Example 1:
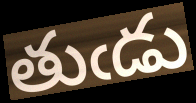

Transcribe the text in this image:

తుఁడు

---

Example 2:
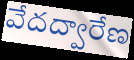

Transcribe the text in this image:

వేదద్వారేణ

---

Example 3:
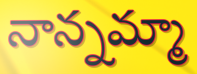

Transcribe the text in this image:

నాన్నమ్మా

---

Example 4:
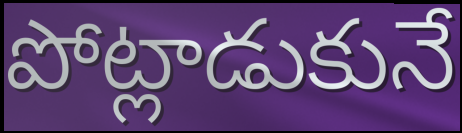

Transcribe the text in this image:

పోట్లాడుకునే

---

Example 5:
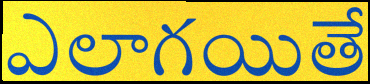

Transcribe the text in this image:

ఎలాగయితే